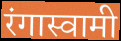
रंगास्वामी